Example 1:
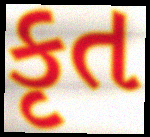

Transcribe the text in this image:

કૃત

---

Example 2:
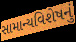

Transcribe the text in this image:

સામાન્યવિશેષનું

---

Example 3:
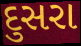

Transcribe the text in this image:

દુસરા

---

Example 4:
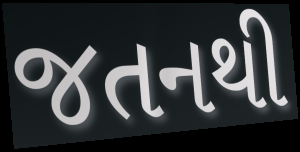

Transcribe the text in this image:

જતનથી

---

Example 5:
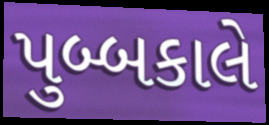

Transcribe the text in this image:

પુબ્બકાલે